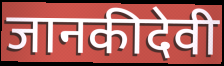
जानकीदेवी